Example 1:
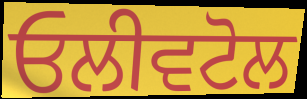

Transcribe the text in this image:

ਓਲੀਵਟੋਲ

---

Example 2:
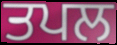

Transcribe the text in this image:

ਤਪਲ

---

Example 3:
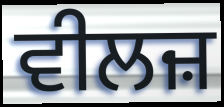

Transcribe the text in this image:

ਵੀਲਜ਼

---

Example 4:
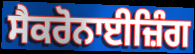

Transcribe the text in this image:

ਸੈਕਰੋਨਾਈਜ਼ਿੰਗ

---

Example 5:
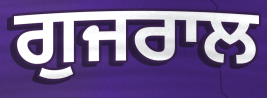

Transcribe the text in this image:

ਗੁਜਰਾਲ